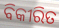
ବିକୀରିତ